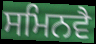
ਸਮਿਨਵੈ